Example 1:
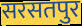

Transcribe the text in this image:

सरसतपुर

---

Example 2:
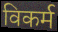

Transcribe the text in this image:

विकर्म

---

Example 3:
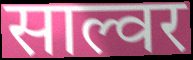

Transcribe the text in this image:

साल्वर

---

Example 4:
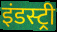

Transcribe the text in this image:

इंडस्‍ट्री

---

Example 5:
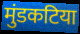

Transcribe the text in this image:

मुंडकटिया